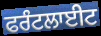
ਫਰੰਟਲਾਈਟ